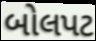
બોલપટ